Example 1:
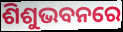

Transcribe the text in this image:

ଶିଶୁଭବନରେ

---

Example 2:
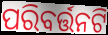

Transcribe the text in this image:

ପରିବର୍ତ୍ତନଟି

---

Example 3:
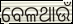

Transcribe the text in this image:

ବେଳଥାଉଁ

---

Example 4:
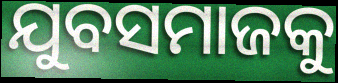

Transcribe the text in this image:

ଯୁବସମାଜକୁ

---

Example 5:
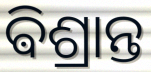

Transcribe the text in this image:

ଵିଶ୍ରାନ୍ତ